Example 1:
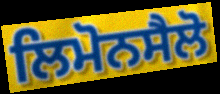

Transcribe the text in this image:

ਲਿਮੋਨਸੈਲੋ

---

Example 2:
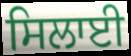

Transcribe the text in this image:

ਸਿਲਾਈ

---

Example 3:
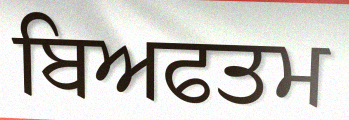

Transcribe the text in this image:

ਬਿਅਫਤਮ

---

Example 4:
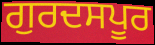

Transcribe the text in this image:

ਗੁਰਦਸਪੂਰ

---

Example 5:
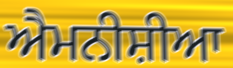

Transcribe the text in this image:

ਐਮਨੀਸ਼ੀਆ